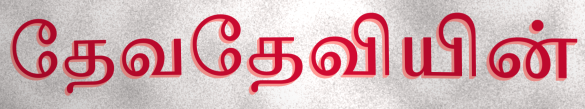
தேவதேவியின்